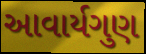
આવાર્યગુણ